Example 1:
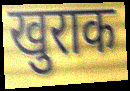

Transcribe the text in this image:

खुराक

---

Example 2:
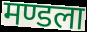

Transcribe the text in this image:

मण्डला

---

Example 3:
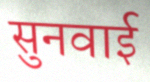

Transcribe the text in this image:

सुनवाई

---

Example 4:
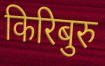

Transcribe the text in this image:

किरिबुरु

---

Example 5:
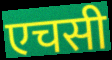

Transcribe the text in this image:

एचसी